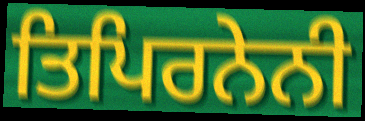
ਤਿਪਿਰਨੇਨੀ